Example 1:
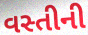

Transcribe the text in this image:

વસ્તીની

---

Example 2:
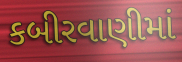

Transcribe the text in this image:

કબીરવાણીમાં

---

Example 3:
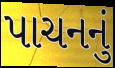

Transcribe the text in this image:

પાચનનું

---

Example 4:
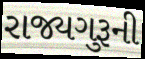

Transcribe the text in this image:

રાજ્યગુરૂની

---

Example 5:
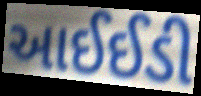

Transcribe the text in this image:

આઈઈડી